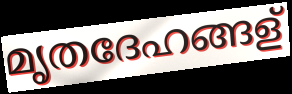
മൃതദേഹങ്ങള്